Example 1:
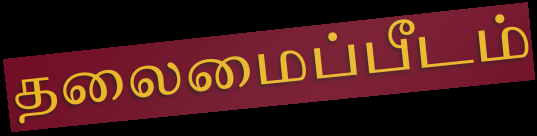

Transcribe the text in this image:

தலைமைப்பீடம்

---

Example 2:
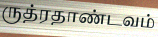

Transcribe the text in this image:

ருத்ரதாண்டவம்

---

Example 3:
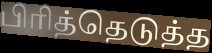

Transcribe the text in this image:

பிரித்தெடுத்த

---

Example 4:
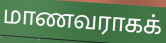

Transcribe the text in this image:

மாணவராகக்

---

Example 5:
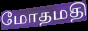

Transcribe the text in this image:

மோதமதி